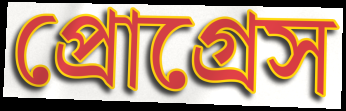
প্রোগ্রেস